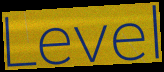
Level